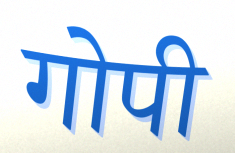
गोपी